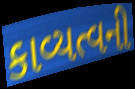
કાવ્યત્વની